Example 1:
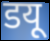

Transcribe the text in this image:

डयू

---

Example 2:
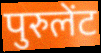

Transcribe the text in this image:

पुरुलेंट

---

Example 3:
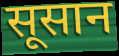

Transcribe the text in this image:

सूसान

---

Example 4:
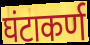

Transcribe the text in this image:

घंटाकर्ण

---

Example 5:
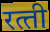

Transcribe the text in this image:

रत्‍ती